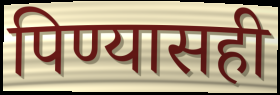
पिण्यासही